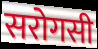
सरोगसी